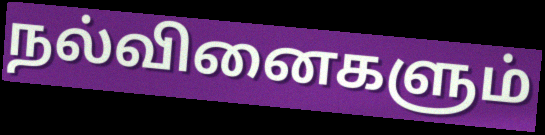
நல்வினைகளும்